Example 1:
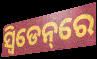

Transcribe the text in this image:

ସ୍ୱିଡେନ୍‌ରେ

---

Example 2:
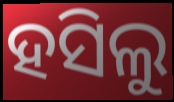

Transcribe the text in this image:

ହସିଲୁ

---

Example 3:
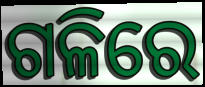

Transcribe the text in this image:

ଗଳିରେ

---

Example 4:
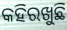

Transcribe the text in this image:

କହିରଖୁଛି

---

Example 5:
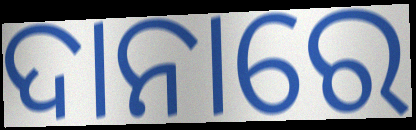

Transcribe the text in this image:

ଦାନାରେ